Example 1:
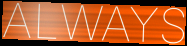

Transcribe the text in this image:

ALWAYS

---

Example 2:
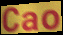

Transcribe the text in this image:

Cao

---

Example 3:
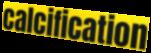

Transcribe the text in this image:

calcification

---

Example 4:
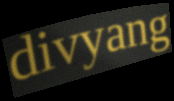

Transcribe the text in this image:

divyang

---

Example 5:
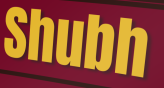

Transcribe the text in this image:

Shubh